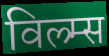
विल्म्स